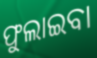
ଫୁଲାଇବା